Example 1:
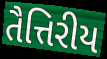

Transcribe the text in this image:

તૈત્તિરીય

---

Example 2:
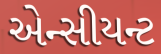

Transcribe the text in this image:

એન્સીયન્ટ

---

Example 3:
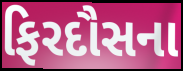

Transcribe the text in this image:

ફિરદૌસના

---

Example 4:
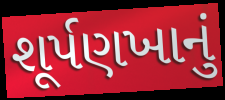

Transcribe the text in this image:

શૂર્પણખાનું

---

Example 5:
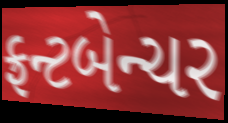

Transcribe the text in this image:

ફ્રન્ટબેન્ચર